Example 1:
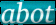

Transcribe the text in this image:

abot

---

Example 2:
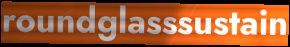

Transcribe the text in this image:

roundglasssustain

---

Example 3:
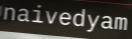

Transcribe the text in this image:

naivedyam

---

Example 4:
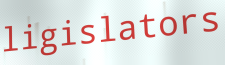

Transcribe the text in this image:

ligislators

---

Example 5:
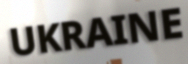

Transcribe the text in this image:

UKRAINE